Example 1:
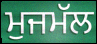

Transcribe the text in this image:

ਮੁਜਮੱਲ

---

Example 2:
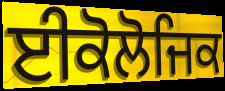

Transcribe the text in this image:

ਈਕੋਲੋਜਿਕ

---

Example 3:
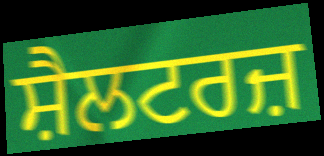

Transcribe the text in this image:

ਸ਼ੈਲਟਰਜ਼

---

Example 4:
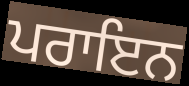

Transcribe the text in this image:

ਪਰਾਇਨ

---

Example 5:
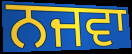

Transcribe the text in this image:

ਨਜਵਾ